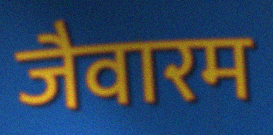
जैवारम